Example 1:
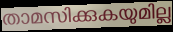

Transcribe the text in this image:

താമസിക്കുകയുമില്ല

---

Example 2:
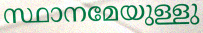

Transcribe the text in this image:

സ്ഥാനമേയുള്ളു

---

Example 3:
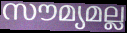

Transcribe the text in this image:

സൗമ്യമല്ല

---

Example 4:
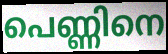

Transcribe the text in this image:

പെണ്ണിനെ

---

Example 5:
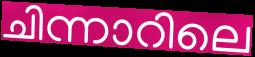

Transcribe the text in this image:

ചിന്നാറിലെ